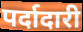
पर्दादारी